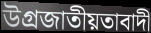
উগ্ৰজাতীয়তাবাদী